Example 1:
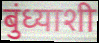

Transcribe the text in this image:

बुंध्याशी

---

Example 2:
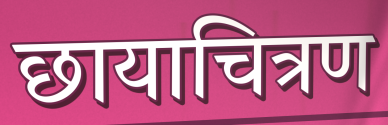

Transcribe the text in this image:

छायाचित्रण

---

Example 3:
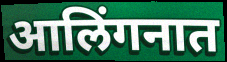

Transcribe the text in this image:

आलिंगनात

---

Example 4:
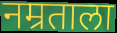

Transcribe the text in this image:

नम्रताला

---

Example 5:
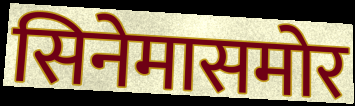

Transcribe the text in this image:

सिनेमासमोर